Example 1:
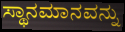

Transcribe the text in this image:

ಸ್ಥಾನಮಾನವನ್ನು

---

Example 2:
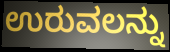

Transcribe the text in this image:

ಉರುವಲನ್ನು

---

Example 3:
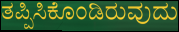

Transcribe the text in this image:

ತಪ್ಪಿಸಿಕೊಂಡಿರುವುದು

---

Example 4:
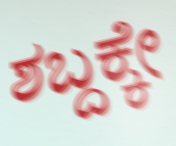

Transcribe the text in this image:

ಶಬ್ದಕ್ಕೇ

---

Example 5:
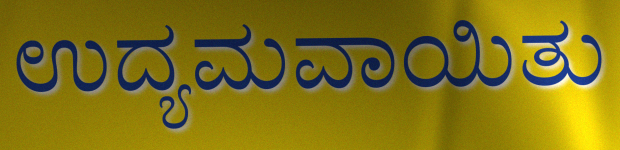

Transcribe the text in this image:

ಉದ್ಯಮವಾಯಿತು